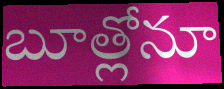
బూత్లోనూ